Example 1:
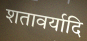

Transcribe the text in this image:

शतावर्यादि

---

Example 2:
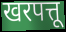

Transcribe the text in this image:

खरपत्तू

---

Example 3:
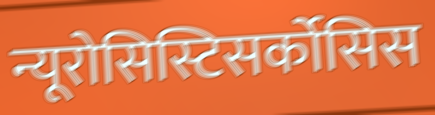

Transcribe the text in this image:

न्यूरोसिस्टिसर्कोसिस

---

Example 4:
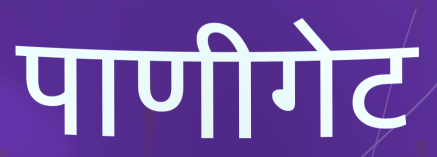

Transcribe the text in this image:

पाणीगेट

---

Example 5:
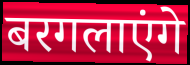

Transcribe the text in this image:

बरगलाएंगे